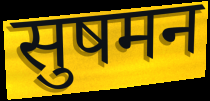
सुषमन